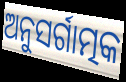
ଅନୁସର୍ଗାତ୍ମକ